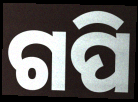
ଗପି